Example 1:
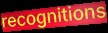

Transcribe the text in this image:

recognitions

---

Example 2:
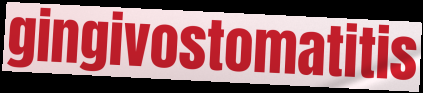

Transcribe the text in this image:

gingivostomatitis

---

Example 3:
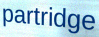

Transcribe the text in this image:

partridge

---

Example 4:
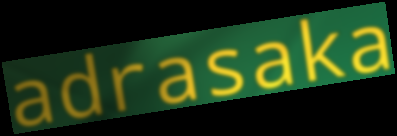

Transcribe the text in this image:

adrasaka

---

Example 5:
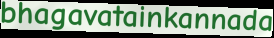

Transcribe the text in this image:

bhagavatainkannada